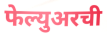
फेल्युअरची